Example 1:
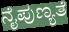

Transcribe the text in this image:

ನೈಪುಣ್ಯತೆ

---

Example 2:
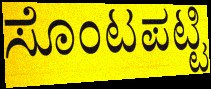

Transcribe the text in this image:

ಸೊಂಟಪಟ್ಟಿ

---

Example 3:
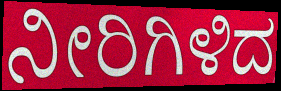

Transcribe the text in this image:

ನೀರಿಗಿಳಿದ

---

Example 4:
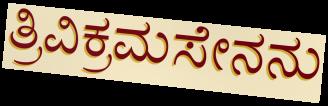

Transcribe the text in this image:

ತ್ರಿವಿಕ್ರಮಸೇನನು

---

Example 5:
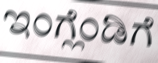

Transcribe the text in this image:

ಇಂಗ್ಲೆಂಡಿಗೆ